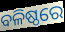
ବଳିଷ୍ଠରେ